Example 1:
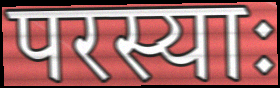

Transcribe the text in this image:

परस्याः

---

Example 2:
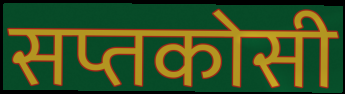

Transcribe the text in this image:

सप्तकोसी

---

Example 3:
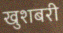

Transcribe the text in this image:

खुशबरी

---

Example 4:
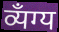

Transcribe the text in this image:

व्यँग्य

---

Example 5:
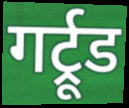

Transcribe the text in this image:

गर्ट्रूड